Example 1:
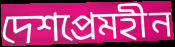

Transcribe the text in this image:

দেশপ্রেমহীন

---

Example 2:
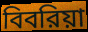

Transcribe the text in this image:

বিবরিয়া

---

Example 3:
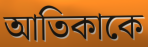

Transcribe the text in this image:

আতিকাকে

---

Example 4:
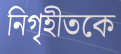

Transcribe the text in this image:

নিগৃহীতকে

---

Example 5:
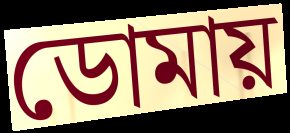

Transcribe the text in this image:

ডোমায়